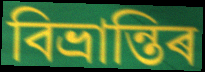
বিভ্ৰান্তিৰ